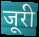
जूरी